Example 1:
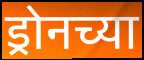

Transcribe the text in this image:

ड्रोनच्या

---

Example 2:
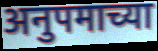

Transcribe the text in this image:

अनुपमाच्या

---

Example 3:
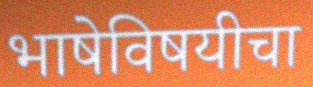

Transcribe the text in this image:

भाषेविषयीचा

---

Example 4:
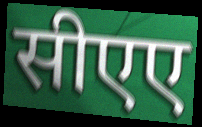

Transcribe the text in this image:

सीएए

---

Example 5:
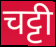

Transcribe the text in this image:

चट्टी